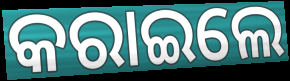
କରାଇଲେ